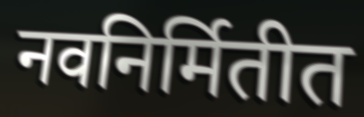
नवनिर्मितीत